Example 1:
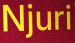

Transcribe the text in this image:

Njuri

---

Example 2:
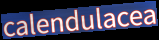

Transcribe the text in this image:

calendulacea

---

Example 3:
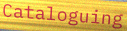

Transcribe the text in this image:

Cataloguing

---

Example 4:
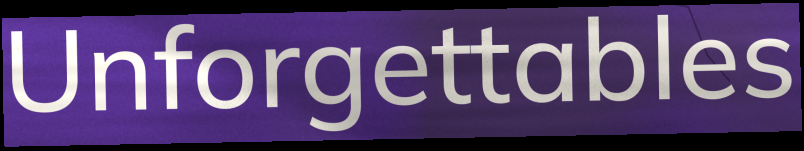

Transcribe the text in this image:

Unforgettables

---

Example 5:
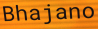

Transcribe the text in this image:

Bhajano